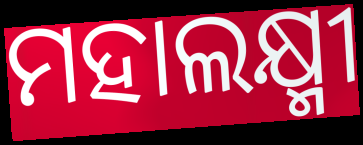
ମହାଲକ୍ଷ୍ମୀ